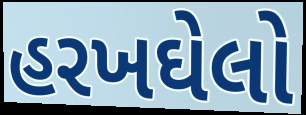
હરખઘેલો